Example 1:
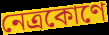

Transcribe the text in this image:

নেত্রকোণে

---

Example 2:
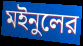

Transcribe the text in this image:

মইনুলের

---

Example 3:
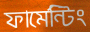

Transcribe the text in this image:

ফার্মেন্টিং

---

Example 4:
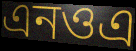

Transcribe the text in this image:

এনওএ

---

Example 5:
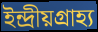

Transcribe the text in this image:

ইন্দ্রীয়গ্রাহ্য